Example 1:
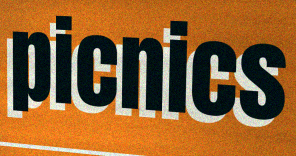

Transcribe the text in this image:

picnics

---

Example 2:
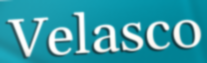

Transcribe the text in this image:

Velasco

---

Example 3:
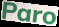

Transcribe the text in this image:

Paro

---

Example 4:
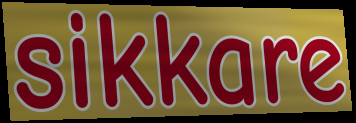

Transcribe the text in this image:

sikkare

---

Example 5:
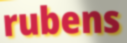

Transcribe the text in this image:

rubens